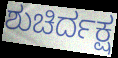
ಶುಚಿರ್ದಕ್ಷ